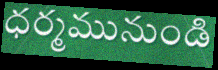
ధర్మమునుండి